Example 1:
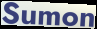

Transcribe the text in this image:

Sumon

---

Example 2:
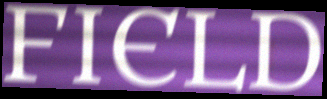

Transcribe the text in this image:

FIELD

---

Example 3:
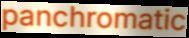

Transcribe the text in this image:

panchromatic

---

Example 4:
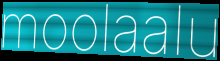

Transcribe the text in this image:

moolaalu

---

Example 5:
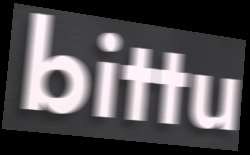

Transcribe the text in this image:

bittu